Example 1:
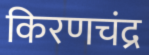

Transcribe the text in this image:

किरणचंद्र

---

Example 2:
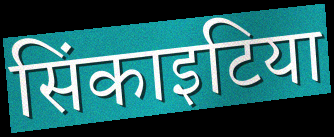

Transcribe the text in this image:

सिंकाइटिया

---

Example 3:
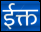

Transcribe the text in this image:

ईक्त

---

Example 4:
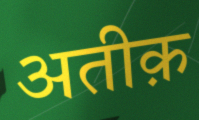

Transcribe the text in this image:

अतीक़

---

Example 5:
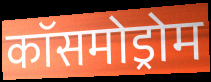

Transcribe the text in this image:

कॉसमोड्रोम